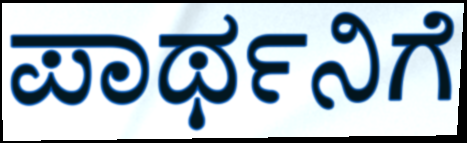
ಪಾರ್ಥನಿಗೆ